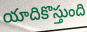
యాదికొస్తుంది